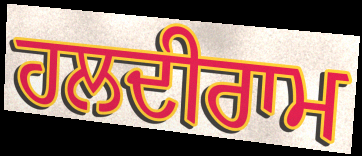
ਹਲਦੀਰਾਮ